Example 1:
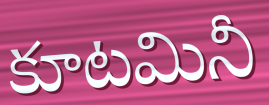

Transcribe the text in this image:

కూటమినీ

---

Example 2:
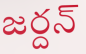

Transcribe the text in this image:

జర్దన్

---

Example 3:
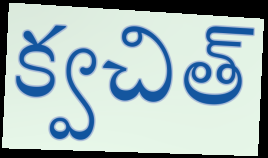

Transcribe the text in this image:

క్వచిత్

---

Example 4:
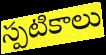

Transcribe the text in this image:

స్పటికాలు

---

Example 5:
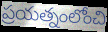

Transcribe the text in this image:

ప్రయత్నంలోంచి